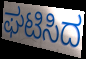
ಘಟಿಸಿದ